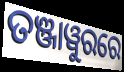
ତଞ୍ଜାୱୁରରେ